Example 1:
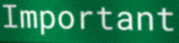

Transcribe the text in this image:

Important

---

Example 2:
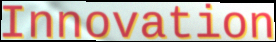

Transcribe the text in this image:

Innovation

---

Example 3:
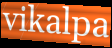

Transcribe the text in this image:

vikalpa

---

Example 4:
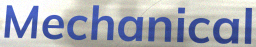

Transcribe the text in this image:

Mechanical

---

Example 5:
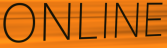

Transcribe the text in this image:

ONLINE